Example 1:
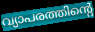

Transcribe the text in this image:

വ്യാപരത്തിന്റെ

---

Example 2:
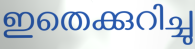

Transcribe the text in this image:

ഇതെക്കുറിച്ചു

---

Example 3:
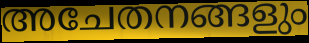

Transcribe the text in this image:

അചേതനങ്ങളും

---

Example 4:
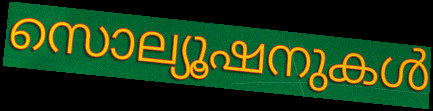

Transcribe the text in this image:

സൊല്യൂഷനുകൾ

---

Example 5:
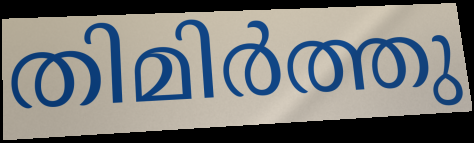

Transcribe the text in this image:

തിമിർത്തു